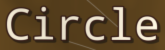
Circle